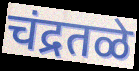
चंद्रतळे